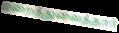
மறைத்துவைத்தார்